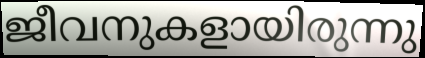
ജീവനുകളായിരുന്നു